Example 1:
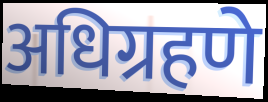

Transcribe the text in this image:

अधिग्रहणे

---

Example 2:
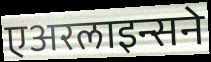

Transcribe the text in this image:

एअरलाइन्सने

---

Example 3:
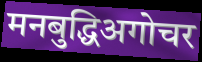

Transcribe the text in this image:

मनबुद्धिअगोचर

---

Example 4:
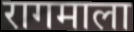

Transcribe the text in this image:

रागमाला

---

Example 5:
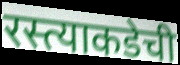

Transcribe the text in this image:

रस्त्याकडेची